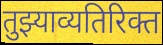
तुझ्याव्यतिरिक्त